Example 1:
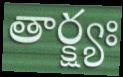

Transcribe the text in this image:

తార్క్ష్యః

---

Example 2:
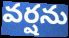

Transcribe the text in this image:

వర్షను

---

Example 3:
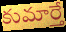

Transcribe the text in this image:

కుమార్తే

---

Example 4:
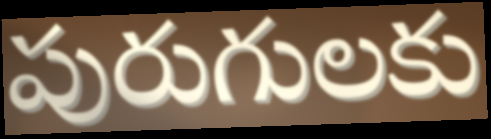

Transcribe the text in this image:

పురుగులకు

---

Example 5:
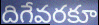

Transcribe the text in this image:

దిగేవరకూ